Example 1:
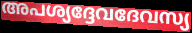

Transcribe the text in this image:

അപശ്യദ്ദേവദേവസ്യ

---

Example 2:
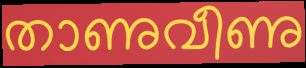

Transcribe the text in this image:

താണുവീണു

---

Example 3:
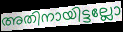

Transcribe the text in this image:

അതിനായിട്ടല്ലോ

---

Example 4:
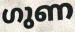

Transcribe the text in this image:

ഗുണ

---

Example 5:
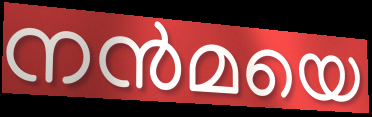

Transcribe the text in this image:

നൻമയെ